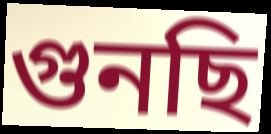
গুনছি